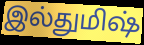
இல்துமிஷ்